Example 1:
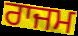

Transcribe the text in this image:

ਰਾਜਮ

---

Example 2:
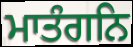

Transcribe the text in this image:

ਮਾਤੰਗਨਿ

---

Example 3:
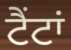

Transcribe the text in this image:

ਟੈਂਟਾਂ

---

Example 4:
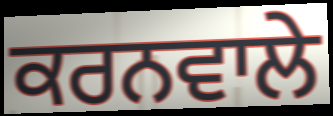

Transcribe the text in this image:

ਕਰਨਵਾਲੇ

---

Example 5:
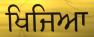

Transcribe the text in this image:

ਖਿਜਿਆ